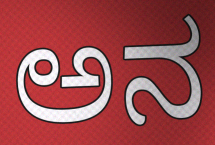
ಅನ